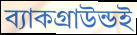
ব্যাকগ্রাউন্ডই